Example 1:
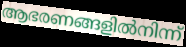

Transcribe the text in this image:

ആഭരണങ്ങളിൽനിന്ന്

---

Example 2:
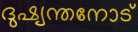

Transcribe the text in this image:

ദുഷ്യന്തനോട്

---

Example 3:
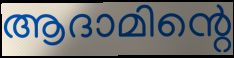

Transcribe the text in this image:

ആദാമിന്റെ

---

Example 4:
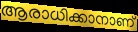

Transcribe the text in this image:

ആരാധിക്കാനാണ്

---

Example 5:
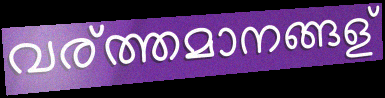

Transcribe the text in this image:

വര്ത്തമാനങ്ങള്